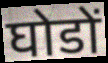
घोडों